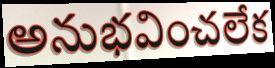
అనుభవించలేక